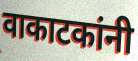
वाकाटकांनी